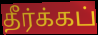
தீர்க்கப்